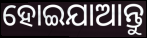
ହୋଇଯାଆନ୍ତୁ